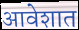
आवेशात